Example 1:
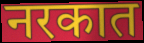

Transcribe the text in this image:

नरकात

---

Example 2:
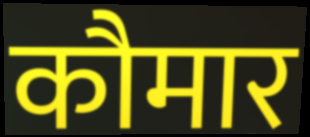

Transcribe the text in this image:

कौमार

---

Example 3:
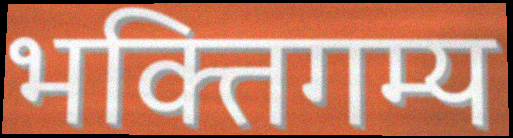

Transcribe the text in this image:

भक्तिगम्य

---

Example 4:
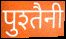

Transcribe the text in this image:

पुश्तैनी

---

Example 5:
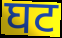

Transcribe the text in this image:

घट